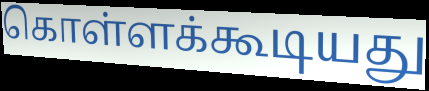
கொள்ளக்கூடியது